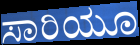
ಸಾರಿಯೂ